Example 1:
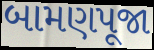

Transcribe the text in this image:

બામણપૂજા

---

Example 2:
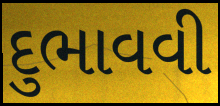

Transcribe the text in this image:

દુભાવવી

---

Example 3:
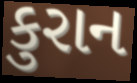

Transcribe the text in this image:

કુરાન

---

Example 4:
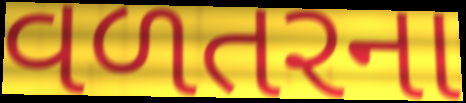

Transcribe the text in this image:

વળતરના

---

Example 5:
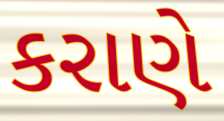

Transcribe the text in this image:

કરાણે